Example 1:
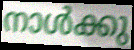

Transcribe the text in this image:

നാൾക്കു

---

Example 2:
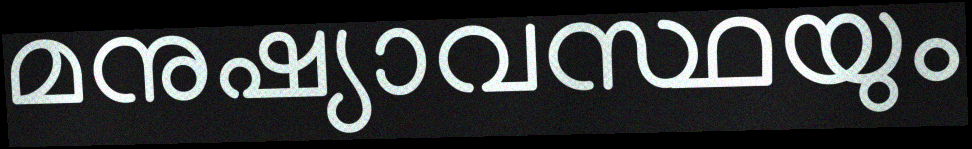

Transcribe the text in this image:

മനുഷ്യാവസ്ഥയും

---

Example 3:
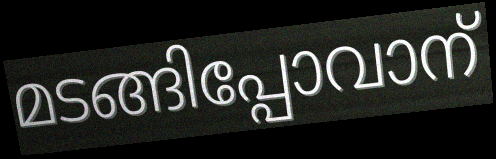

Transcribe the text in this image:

മടങ്ങിപ്പോവാന്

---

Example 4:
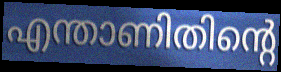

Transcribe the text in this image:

എന്താണിതിന്റെ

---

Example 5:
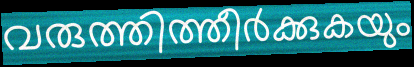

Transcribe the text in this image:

വരുത്തിത്തീർക്കുകയും